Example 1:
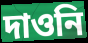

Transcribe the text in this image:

দাওনি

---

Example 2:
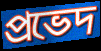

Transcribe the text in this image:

প্রভেদ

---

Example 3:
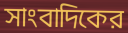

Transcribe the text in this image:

সাংবাদিকের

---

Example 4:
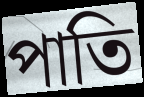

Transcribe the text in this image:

পাতি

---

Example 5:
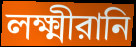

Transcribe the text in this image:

লক্ষ্মীরানি